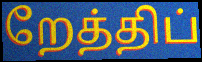
றேத்திப்